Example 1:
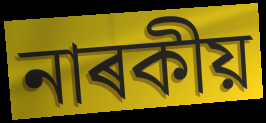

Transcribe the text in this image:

নাৰকীয়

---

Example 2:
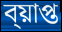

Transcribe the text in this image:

ব্য়াপ্ত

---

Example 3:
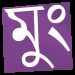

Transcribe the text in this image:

মুং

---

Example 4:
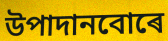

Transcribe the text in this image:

উপাদানবোৰে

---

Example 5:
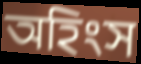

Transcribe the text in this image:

অহিংস